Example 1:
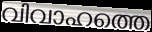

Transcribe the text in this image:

വിവാഹത്തെ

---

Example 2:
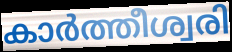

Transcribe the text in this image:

കാർത്തീശ്വരി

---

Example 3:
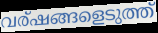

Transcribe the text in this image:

വര്ഷങ്ങളെടുത്ത്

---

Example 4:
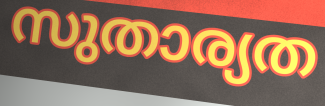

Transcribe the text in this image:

സുതാര്യത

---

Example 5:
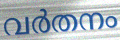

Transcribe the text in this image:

വർതനം